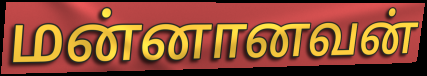
மன்னானவன்